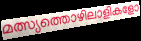
മത്സ്യത്തൊഴിലാളികളോ